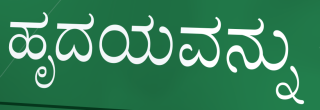
ಹೃದಯವನ್ನು